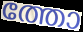
ത്തോ